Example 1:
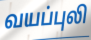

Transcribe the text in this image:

வயப்புலி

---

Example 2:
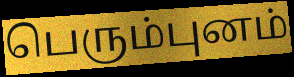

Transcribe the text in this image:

பெரும்புனம்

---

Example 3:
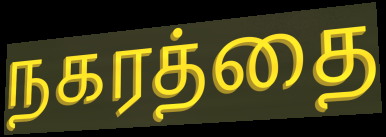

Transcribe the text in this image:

நகரத்தை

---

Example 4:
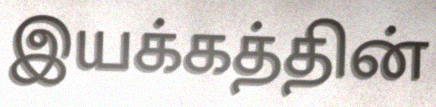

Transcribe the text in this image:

இயக்கத்தின்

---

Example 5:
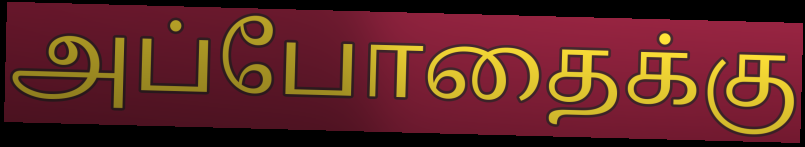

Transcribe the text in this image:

அப்போதைக்கு